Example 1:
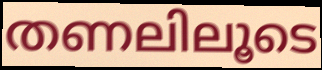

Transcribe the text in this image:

തണലിലൂടെ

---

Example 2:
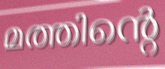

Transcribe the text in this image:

മത്തിന്റെ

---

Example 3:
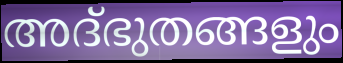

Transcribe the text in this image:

അദ്ഭുതങ്ങളും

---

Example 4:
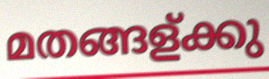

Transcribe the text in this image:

മതങ്ങള്ക്കു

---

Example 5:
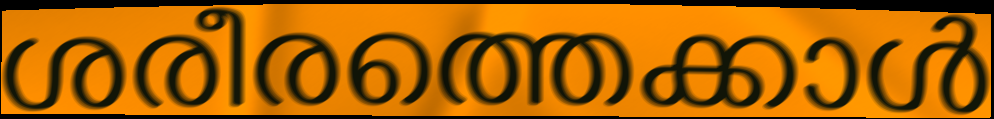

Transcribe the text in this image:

ശരീരത്തെക്കാൾ